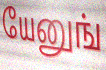
யேனுங்